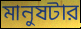
মানুষটার